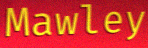
Mawley